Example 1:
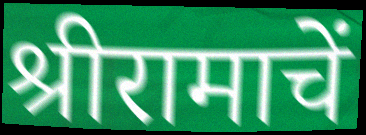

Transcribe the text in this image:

श्रीरामाचें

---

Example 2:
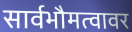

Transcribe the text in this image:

सार्वभौमत्वावर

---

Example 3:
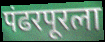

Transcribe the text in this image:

पंढरपूरला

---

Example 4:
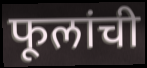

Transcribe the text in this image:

फूलांची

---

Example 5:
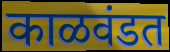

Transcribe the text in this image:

काळवंडत